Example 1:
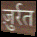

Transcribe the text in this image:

ज़ुर्रत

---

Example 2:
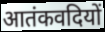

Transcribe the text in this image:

आतंकवदियों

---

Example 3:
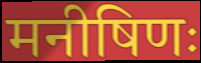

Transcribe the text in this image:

मनीषिणः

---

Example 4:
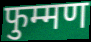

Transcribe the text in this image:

फुम्मण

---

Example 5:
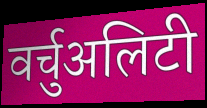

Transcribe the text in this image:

वर्चुअलिटी